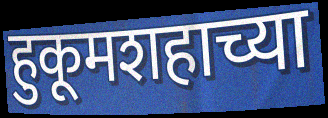
हुकूमशहाच्या